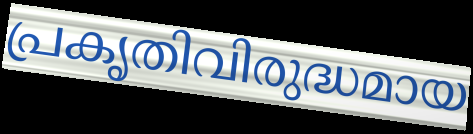
പ്രകൃതിവിരുദ്ധമായ